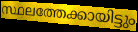
സ്ഥലത്തേക്കായിട്ടും